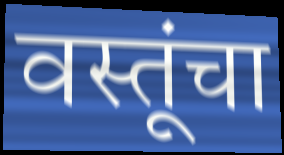
वस्तूंचा